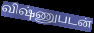
விஷ்ணுபடன்